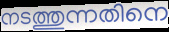
നടത്തുന്നതിനെ